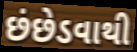
છંછેડવાથી